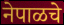
नेपाळचे